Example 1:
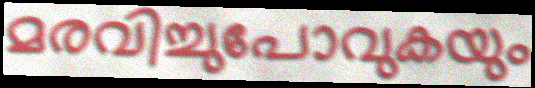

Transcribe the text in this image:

മരവിച്ചുപോവുകയും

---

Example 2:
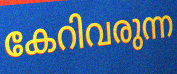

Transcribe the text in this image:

കേറിവരുന്ന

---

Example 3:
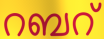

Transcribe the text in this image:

റബറ്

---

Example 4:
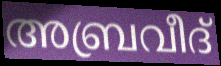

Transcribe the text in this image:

അബ്രവീദ്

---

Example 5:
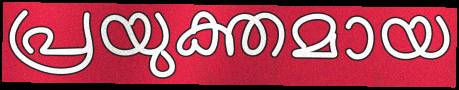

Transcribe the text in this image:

പ്രയുക്തമായ